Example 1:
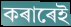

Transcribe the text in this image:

কৰাৰেই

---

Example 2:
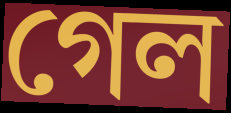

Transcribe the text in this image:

গেল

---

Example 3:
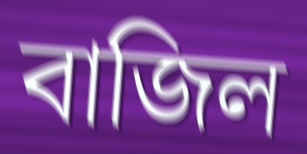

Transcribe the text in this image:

বাজিল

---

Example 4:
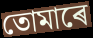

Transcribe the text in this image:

তোমাৰে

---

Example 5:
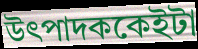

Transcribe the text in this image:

উৎপাদককেইটা